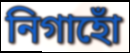
নিগাহোঁ